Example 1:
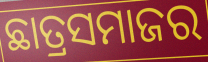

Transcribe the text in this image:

ଛାତ୍ରସମାଜର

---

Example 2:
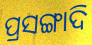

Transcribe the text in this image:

ପ୍ରସଙ୍ଗାଦି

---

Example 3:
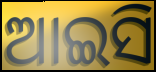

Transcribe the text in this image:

ଆଇସି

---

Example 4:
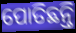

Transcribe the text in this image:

ପୋତିଛନ୍ତି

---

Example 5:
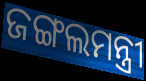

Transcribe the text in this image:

ଜଙ୍ଗଲମନ୍ତ୍ରୀ